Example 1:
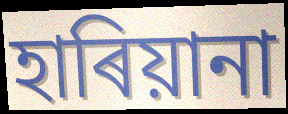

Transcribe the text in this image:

হাৰিয়ানা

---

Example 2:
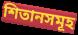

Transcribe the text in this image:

শিতানসমূহ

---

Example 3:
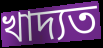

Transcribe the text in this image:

খাদ্যত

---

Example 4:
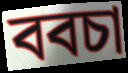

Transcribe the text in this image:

ববচা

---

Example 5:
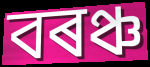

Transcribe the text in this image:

বৰঞ্চ